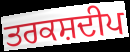
ਤਰਕਸ਼ਦੀਪ